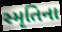
સ્મૃતિના